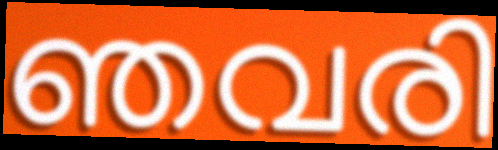
ഞവരി